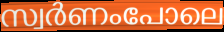
സ്വർണംപോലെ